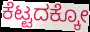
ಕೆಟ್ಟದಕ್ಕೋ